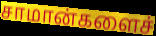
சாமான்களைச்